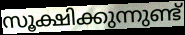
സൂക്ഷിക്കുന്നുണ്ട്